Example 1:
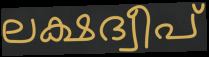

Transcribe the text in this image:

ലക്ഷദ്വീപ്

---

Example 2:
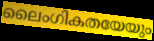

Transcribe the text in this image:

ലൈംഗികതയേയും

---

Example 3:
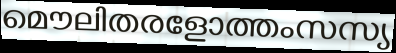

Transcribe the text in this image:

മൌലിതരളോത്തംസസ്യ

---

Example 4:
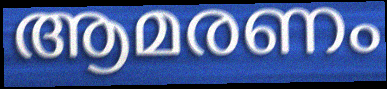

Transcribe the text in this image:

ആമരണം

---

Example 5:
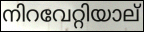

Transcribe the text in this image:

നിറവേറ്റിയാല്